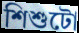
শিশুটো